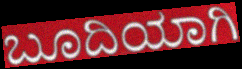
ಬೂದಿಯಾಗಿ